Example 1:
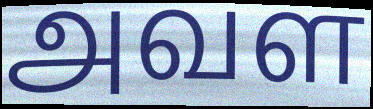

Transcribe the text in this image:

அவள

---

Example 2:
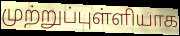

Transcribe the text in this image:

முற்றுப்புள்ளியாக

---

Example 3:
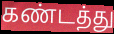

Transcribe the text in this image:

கண்டத்து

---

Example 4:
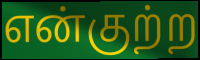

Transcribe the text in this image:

என்குற்ற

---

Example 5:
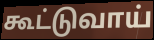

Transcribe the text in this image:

கூட்டுவாய்